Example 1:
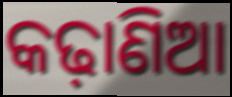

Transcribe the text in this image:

କଢ଼ାଣିଆ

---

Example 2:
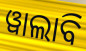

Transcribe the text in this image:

ୱାଲାବି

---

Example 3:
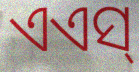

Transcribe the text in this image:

ଏଏସ୍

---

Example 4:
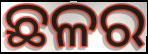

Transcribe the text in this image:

ଛଳର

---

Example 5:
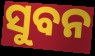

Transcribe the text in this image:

ସୁବନ